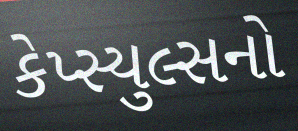
કેપ્સ્યુલ્સનો